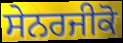
ਸੇਨਰਜੀਕੋ